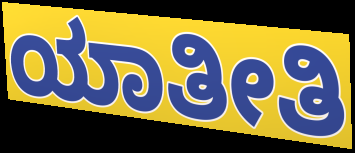
ಯಾತೀತಿ